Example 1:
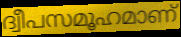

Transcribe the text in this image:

ദ്വീപസമൂഹമാണ്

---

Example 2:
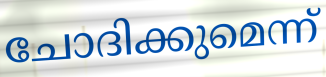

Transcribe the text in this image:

ചോദിക്കുമെന്ന്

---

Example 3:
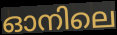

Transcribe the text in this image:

ഓനിലെ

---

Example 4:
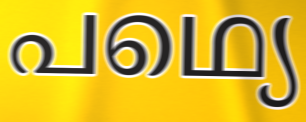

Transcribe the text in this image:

പഥ്യെ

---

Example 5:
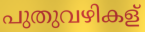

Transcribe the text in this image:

പുതുവഴികള്